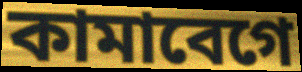
কামাবেগে